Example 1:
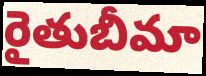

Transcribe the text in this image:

రైతుబీమా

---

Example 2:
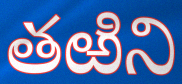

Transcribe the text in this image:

తఱిని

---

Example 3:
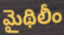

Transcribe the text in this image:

మైథిలీం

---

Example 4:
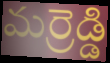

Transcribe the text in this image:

మర్రెడ్డి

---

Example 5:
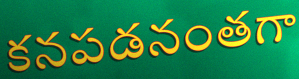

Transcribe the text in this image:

కనపడనంతగా